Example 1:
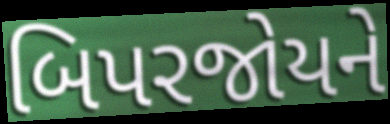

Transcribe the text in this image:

બિપરજોયને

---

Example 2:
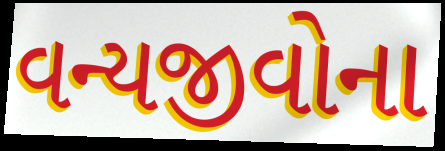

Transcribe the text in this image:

વન્યજીવોના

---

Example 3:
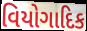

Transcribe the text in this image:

વિયોગાદિક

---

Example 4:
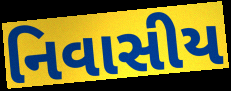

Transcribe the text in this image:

નિવાસીય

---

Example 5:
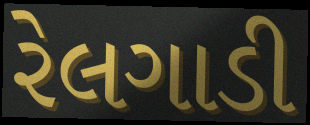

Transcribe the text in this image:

રેલગાડી